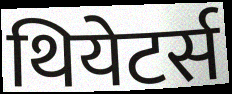
थियेटर्स